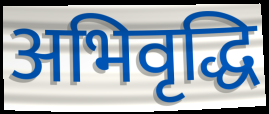
अभिवृद्धि